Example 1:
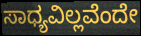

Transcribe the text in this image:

ಸಾಧ್ಯವಿಲ್ಲವೆಂದೇ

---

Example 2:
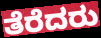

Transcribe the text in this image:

ತೆರೆದರು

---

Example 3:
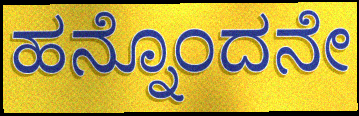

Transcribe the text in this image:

ಹನ್ನೊಂದನೇ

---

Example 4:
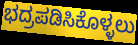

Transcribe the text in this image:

ಭದ್ರಪಡಿಸಿಕೊಳ್ಳಲು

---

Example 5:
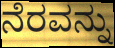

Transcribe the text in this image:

ನೆರವನ್ನು